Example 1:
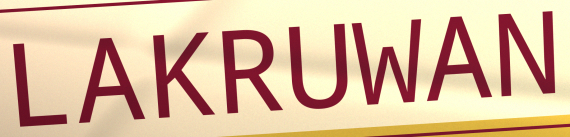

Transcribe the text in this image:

LAKRUWAN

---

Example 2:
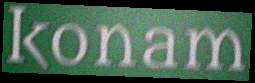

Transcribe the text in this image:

konam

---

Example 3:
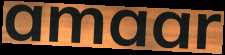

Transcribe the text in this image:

amaar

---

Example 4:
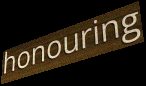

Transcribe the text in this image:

honouring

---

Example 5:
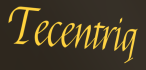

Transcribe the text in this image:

Tecentriq